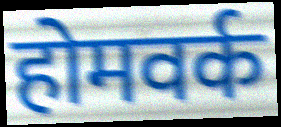
होमवर्क